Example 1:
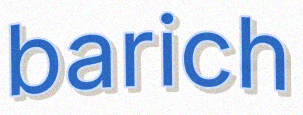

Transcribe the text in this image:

barich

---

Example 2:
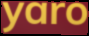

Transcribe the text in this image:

yaro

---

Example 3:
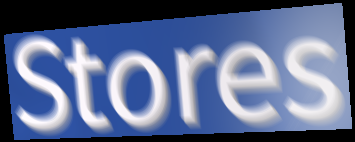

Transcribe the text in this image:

Stores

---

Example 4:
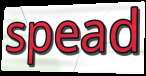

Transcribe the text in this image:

spead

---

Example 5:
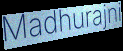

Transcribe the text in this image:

Madhurajni